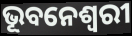
ଭୂବନେଶ୍ୱରୀ